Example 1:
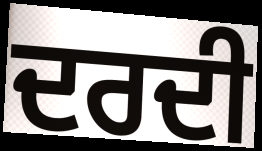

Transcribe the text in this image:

ਦਰਦੀ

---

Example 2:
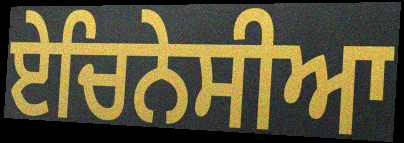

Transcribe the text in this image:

ਏਚਿਨੇਸੀਆ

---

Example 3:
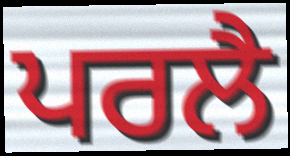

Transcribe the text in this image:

ਪਰਲੈ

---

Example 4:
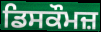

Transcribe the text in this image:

ਡਿਸਕੌਮਜ਼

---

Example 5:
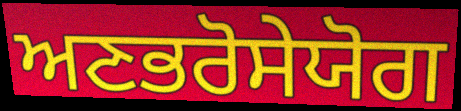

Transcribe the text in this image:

ਅਣਭਰੋਸੇਯੋਗ